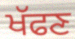
ਖੱਫਣ